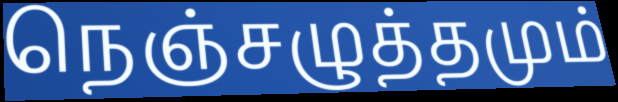
நெஞ்சழுத்தமும்